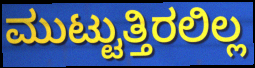
ಮುಟ್ಟುತ್ತಿರಲಿಲ್ಲ